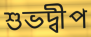
শুভদ্বীপ